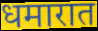
धमारात